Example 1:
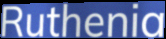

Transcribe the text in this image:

Ruthenia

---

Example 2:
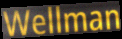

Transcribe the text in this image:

Wellman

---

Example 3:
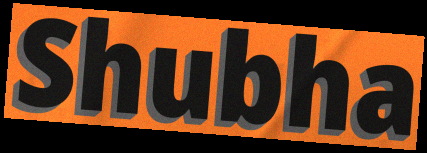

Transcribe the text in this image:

Shubha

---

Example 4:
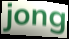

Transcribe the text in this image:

jong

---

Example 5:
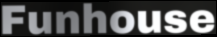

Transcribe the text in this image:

Funhouse